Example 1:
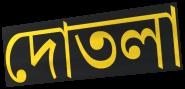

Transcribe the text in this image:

দোতলা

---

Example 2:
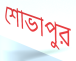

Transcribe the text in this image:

শোভাপুর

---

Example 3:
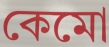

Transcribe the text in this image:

কেমো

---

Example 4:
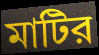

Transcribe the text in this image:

মাটির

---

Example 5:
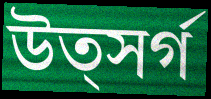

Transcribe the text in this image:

উত্সর্গ